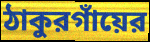
ঠাকুরগাঁয়ের